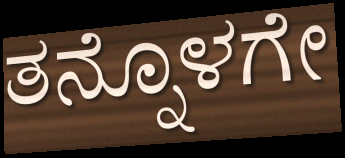
ತನ್ನೊಳಗೇ